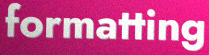
formatting